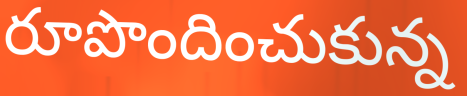
రూపొందించుకున్న